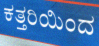
ಕತ್ತರಿಯಿಂದ